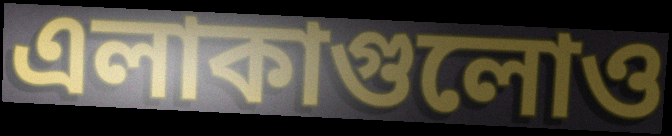
এলাকাগুলোও